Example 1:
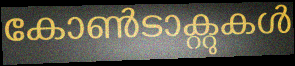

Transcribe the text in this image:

കോൺടാക്റ്റുകൾ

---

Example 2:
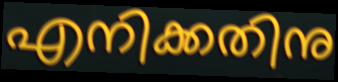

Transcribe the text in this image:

എനിക്കതിനു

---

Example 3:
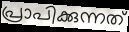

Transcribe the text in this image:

പ്രാപിക്കുന്നത്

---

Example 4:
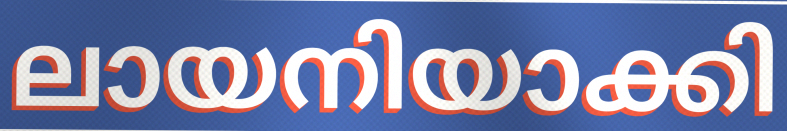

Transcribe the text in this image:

ലായനിയാക്കി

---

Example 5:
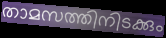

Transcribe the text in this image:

താമസത്തിനിടക്കും